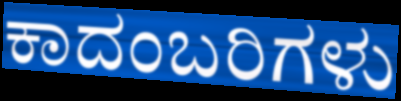
ಕಾದಂಬರಿಗಳು